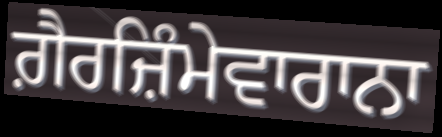
ਗ਼ੈਰਜ਼ਿੰਮੇਵਾਰਾਨਾ